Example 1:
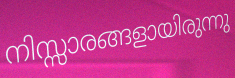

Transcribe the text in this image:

നിസ്സാരങ്ങളായിരുന്നു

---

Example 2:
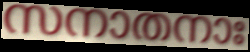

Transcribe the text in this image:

സനാതനാഃ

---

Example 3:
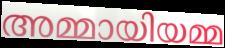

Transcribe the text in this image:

അമ്മായിയമ്മ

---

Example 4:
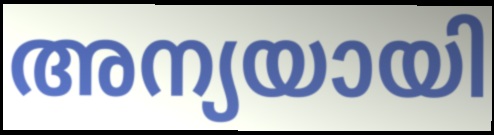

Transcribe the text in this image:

അന്യയായി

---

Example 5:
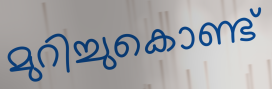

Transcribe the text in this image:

മുറിച്ചുകൊണ്ട്